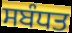
ਸਬੰਧਤ